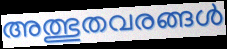
അത്ഭുതവരങ്ങൾ